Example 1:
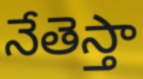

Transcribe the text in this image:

నేతెస్తా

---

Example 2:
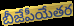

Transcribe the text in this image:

బీజేపీయేతర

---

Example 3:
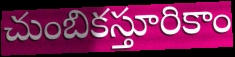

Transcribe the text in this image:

చుంబికస్తూరికాం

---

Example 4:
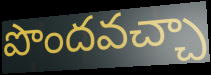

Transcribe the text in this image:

పొందవచ్చా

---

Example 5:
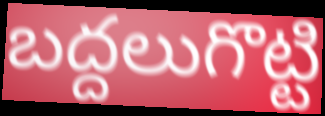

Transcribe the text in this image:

బద్దలుగొట్టి